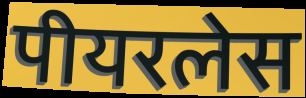
पीयरलेस